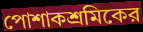
পোশাকশ্রমিকের